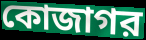
কোজাগর